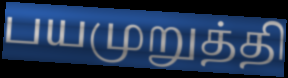
பயமுறுத்தி